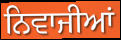
ਨਿਵਾਜੀਆਂ